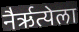
नैर्ऋत्येला